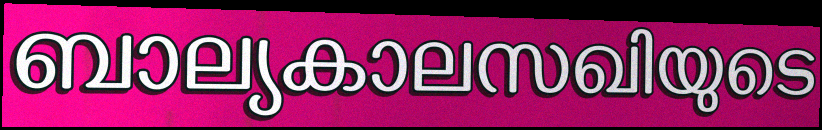
ബാല്യകാലസഖിയുടെ